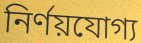
নির্ণয়যোগ্য